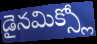
డైనమిక్స్లో